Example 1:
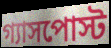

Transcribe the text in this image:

গ্যাসপোস্ট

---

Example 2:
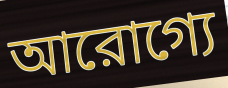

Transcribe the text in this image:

আরোগ্যে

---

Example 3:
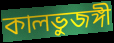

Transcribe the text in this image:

কালভুজঙ্গী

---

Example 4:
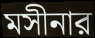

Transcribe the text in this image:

মসীনার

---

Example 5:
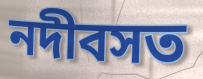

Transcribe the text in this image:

নদীবসত